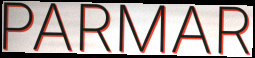
PARMAR